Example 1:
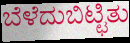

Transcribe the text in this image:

ಬೆಳೆದುಬಿಟ್ಟಿತು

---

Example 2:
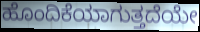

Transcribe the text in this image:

ಹೊಂದಿಕೆಯಾಗುತ್ತದೆಯೇ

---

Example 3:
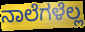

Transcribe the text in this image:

ನಾಲೆಗಳೆಲ್ಲ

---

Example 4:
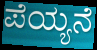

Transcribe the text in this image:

ಪೆಯ್ಯನೆ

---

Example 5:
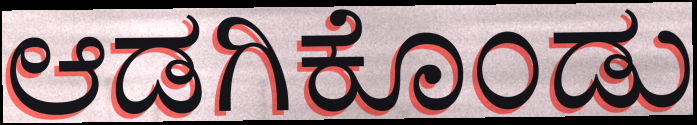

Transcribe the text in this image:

ಆಡಗಿಕೊಂಡು